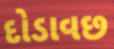
દોડાવછ